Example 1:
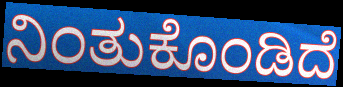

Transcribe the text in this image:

ನಿಂತುಕೊಂಡಿದೆ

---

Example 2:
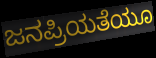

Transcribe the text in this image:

ಜನಪ್ರಿಯತೆಯೂ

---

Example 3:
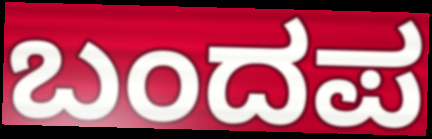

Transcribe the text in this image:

ಬಂದಪ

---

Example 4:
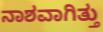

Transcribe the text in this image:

ನಾಶವಾಗಿತ್ತು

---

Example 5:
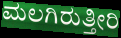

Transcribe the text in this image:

ಮಲಗಿರುತ್ತೀರಿ